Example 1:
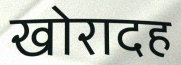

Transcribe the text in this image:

खोरादह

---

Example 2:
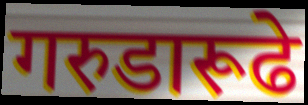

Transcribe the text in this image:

गरुडारूढे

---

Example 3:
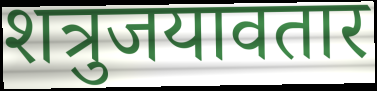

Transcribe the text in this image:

शत्रुजयावतार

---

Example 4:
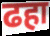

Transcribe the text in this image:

ढहा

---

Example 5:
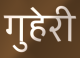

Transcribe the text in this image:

गुहेरी